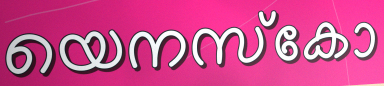
യെനസ്കോ